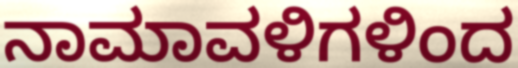
ನಾಮಾವಳಿಗಳಿಂದ